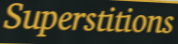
Superstitions